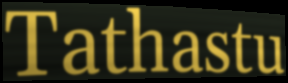
Tathastu